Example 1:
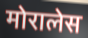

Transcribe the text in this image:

मोरालेस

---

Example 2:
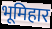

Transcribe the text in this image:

भूमिहार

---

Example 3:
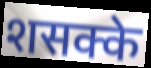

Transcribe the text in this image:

शसक्के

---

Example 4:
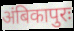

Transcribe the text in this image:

अंबिकापुरः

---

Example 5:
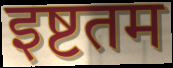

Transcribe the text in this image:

इष्टतम